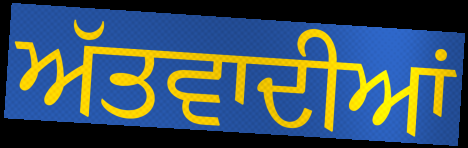
ਅੱਤਵਾਦੀਆਂ